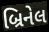
બ્રિનેલ